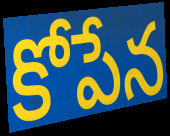
కోపేన